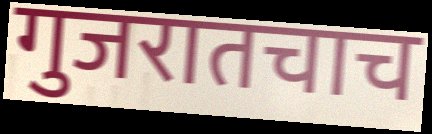
गुजरातचाच